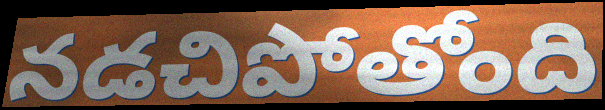
నడచిపోతోంది